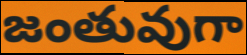
జంతువుగా